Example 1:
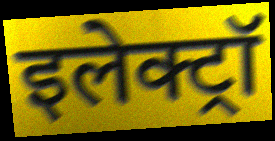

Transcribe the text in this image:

इलेक्ट्रॉ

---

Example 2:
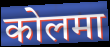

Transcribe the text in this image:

कोलमा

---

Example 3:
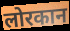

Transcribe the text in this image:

लोरकान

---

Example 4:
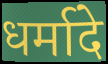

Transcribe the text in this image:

धर्मादे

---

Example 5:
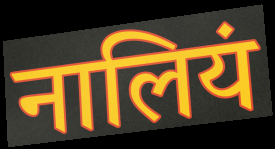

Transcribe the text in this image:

नालियं